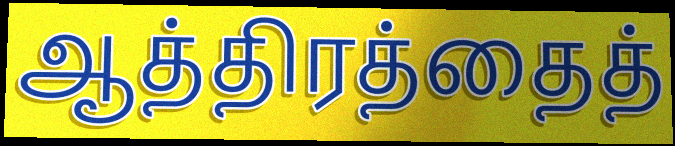
ஆத்திரத்தைத்